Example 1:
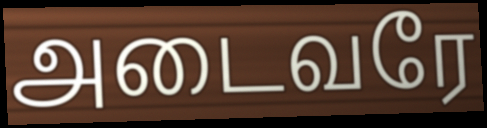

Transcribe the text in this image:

அடைவரே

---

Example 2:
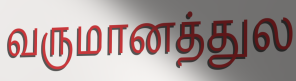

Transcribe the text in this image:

வருமானத்துல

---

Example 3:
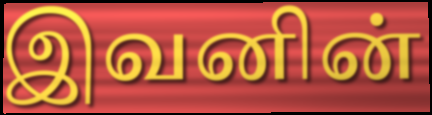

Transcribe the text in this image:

இவனின்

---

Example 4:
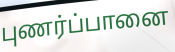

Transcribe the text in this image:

புணர்ப்பானை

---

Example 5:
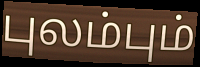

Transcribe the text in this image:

புலம்பும்